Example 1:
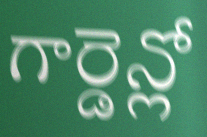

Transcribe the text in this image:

గార్డెన్లో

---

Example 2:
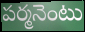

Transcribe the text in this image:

పర్మనెంటు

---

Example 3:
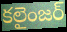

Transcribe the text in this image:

కలైంజర్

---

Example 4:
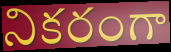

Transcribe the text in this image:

నికరంగా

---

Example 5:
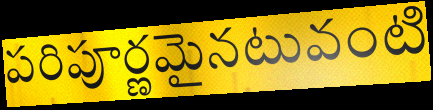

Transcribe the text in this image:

పరిపూర్ణమైనటువంటి